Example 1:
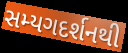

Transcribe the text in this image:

સમ્યગદર્શનથી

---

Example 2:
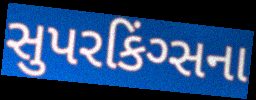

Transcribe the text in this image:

સુપરકિંગ્સના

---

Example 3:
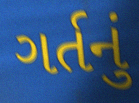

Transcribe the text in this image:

ગર્તનું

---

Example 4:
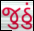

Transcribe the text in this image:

જુઠું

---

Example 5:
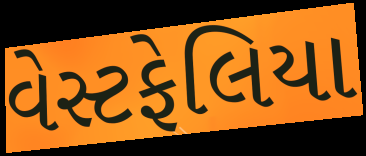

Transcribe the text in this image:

વેસ્ટફેલિયા